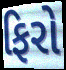
ફિરો